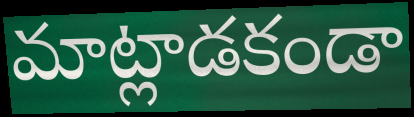
మాట్లాడకండా